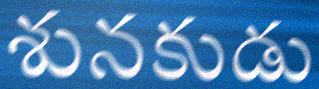
శునకుడు